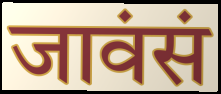
जावंसं